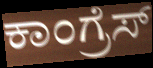
ಕಾಂಗ್ರೆಸ್